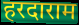
हरदाराम